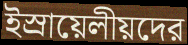
ইস্রায়েলীয়দের